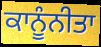
ਕਾਨੂੰਨੀਤਾ